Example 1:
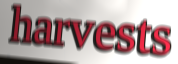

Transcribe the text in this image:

harvests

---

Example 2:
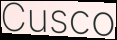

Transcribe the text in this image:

Cusco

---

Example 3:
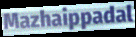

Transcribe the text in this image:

Mazhaippadal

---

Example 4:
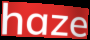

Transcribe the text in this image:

haze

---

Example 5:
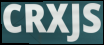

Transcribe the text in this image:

CRXJS